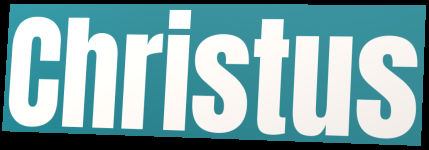
Christus